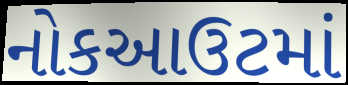
નોકઆઉટમાં